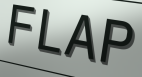
FLAP